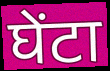
घेंटा